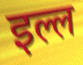
इल्ल